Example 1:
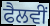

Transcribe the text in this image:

ਫੈਲਵੀਂ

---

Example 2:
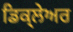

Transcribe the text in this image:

ਡਿਕ੍ਲੇਅਰ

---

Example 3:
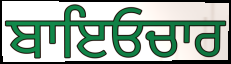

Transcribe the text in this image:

ਬਾਇਓਚਾਰ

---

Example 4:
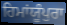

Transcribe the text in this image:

ਹਿਮਾਂਯੂੰਪੁਰਾ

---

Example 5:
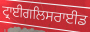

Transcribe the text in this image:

ਟ੍ਰਾਈਗਲਿਸਰਾਈਡ